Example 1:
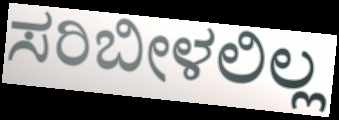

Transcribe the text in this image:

ಸರಿಬೀಳಲಿಲ್ಲ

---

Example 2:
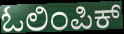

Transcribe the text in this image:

ಓಲಿಂಪಿಕ್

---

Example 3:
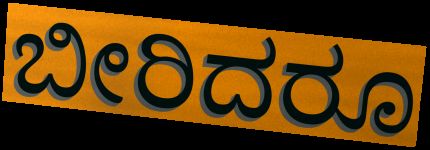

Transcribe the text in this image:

ಬೀರಿದರೂ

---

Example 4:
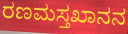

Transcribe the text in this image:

ರಣಮಸ್ತಖಾನನ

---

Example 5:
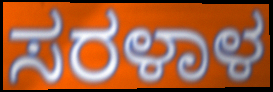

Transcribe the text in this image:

ಸರಳಾಳ